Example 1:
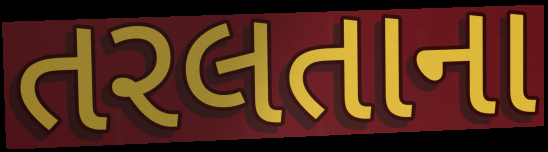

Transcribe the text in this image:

તરલતાના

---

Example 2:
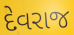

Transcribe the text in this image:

દેવરાજ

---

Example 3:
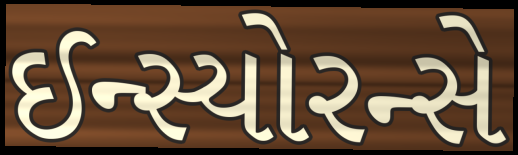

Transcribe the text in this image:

ઈન્સ્યોરન્સે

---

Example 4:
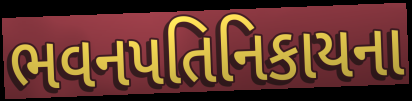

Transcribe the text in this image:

ભવનપતિનિકાયના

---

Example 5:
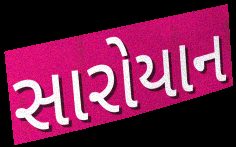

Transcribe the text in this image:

સારોયાન